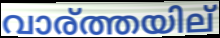
വാര്ത്തയില്